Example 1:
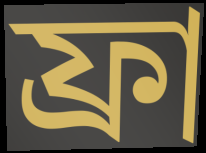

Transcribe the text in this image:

ফ্ৰা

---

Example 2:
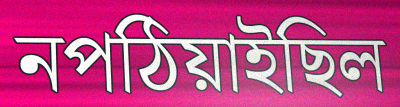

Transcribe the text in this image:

নপঠিয়াইছিল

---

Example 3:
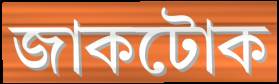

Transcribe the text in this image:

জাকটোক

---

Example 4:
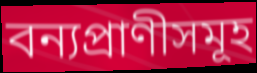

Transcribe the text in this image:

বন্যপ্ৰাণীসমূহ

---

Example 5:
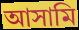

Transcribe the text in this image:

আসামি